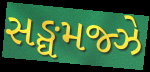
સઙ્ઘમજ્ઝે